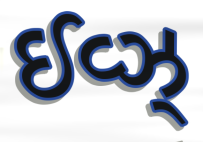
ઈવ્ઝ્